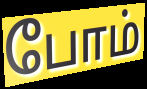
போம்